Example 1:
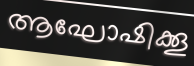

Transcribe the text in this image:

ആഘോഷിക്കൂ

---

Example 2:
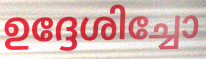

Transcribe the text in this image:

ഉദ്ദേശിച്ചോ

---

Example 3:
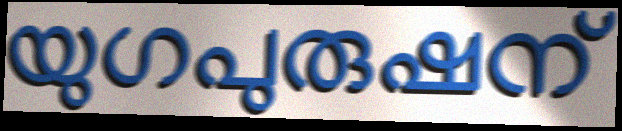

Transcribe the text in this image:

യുഗപുരുഷന്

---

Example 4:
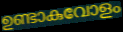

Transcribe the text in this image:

ഉണ്ടാകുവോളം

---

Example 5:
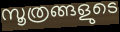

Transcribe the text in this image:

സൂത്രങ്ങളുടെ